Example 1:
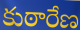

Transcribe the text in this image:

కుఠారేణ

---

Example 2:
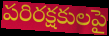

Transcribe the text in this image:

పరిరక్షకులపై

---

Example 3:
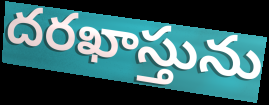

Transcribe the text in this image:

దరఖాస్తును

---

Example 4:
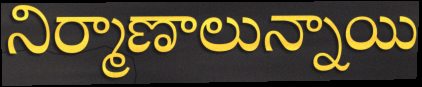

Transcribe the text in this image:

నిర్మాణాలున్నాయి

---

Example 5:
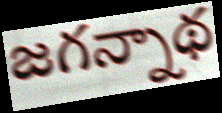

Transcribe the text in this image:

జగన్నాథ